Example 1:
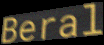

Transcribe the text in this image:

Beral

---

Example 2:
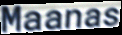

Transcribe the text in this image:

Maanas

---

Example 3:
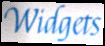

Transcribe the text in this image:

Widgets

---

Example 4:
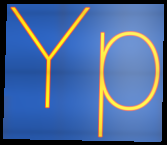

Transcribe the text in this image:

Yp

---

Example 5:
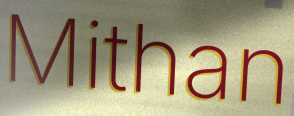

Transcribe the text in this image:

Mithan